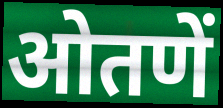
ओतणें